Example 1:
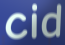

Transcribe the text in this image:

cid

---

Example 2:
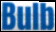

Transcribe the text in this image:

Bulb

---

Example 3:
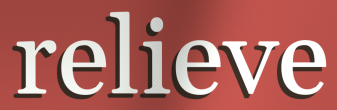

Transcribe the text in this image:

relieve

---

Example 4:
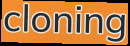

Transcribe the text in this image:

cloning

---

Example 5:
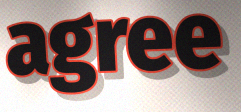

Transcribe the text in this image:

agree